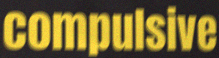
compulsive